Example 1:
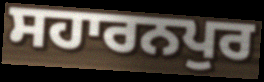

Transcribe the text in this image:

ਸਹਾਰਨਪੁਰ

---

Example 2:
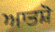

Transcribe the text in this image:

ਆਤਸ਼ੋ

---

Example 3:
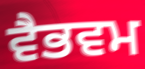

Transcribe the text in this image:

ਵੈਭਵਮ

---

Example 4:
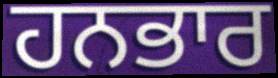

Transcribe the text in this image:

ਹਨਭਾਰ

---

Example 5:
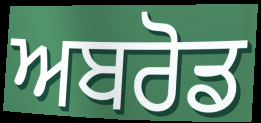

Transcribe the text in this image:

ਅਬਰੋਡ